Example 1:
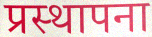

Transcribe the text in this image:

प्रस्थापना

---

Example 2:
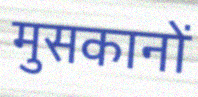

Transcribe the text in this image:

मुसकानों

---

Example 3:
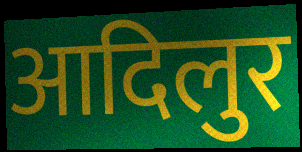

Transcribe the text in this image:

आदिलुर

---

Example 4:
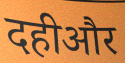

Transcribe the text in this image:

दहीऔर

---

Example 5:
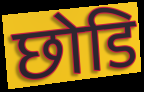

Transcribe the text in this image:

छोडि